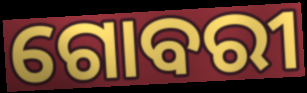
ଗୋବରୀ